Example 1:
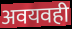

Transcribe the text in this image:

अवयवही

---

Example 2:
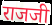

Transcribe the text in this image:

राजजी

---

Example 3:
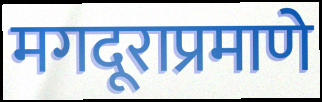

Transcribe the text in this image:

मगदूराप्रमाणे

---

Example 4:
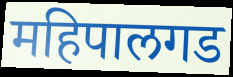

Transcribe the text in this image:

महिपालगड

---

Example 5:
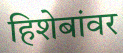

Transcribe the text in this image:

हिशेबांवर